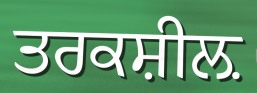
ਤਰਕਸ਼ੀਲ਼